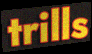
trills